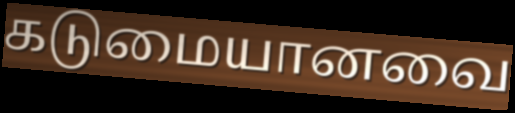
கடுமையானவை